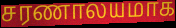
சரணாலயமாக